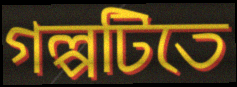
গল্পটিতে